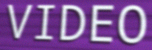
VIDEO